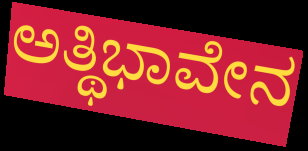
ಅತ್ಥಿಭಾವೇನ